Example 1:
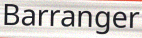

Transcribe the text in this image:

Barranger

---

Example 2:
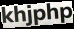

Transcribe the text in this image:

khjphp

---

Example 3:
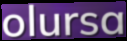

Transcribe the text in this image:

olursa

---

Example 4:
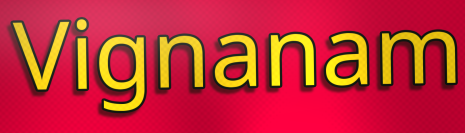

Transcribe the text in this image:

Vignanam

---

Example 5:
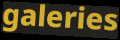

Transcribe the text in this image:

galeries